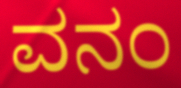
ವನಂ